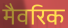
मैवरिक